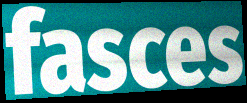
fasces